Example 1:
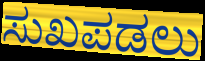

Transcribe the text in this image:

ಸುಖಪಡಲು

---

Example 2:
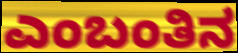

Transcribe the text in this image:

ಎಂಬಂತಿನ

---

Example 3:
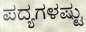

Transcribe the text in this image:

ಪದ್ಯಗಳಷ್ಟು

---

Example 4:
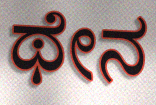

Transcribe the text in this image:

ಥೇನ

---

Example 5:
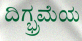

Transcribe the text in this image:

ದಿಗ್ಭ್ರಮೆಯ